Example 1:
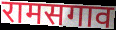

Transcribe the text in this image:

रामसगाव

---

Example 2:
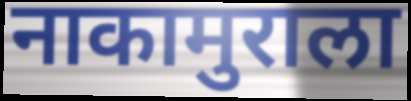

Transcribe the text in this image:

नाकामुराला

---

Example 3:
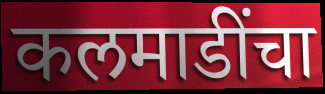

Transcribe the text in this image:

कलमाडींचा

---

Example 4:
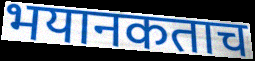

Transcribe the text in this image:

भयानकताच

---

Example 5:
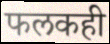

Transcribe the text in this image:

फलकही